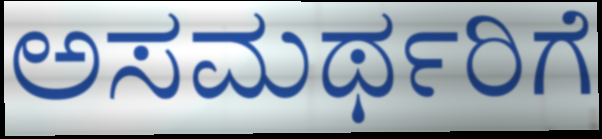
ಅಸಮರ್ಥರಿಗೆ